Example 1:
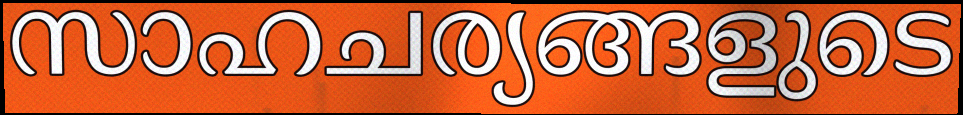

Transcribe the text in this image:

സാഹചര്യങ്ങളുടെ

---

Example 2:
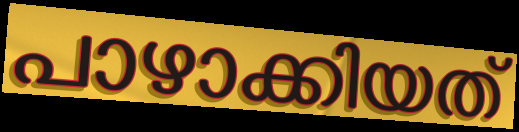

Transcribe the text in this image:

പാഴാക്കിയത്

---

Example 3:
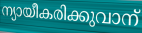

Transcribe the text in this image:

ന്യായീകരിക്കുവാന്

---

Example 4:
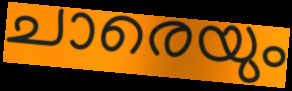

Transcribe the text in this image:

ചാരെയും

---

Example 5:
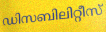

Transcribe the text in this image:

ഡിസബിലിറ്റീസ്